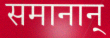
समानान्